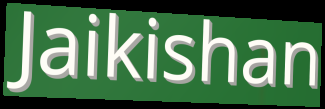
Jaikishan